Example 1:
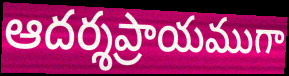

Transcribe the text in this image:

ఆదర్శప్రాయముగా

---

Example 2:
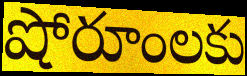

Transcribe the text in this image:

షోరూంలకు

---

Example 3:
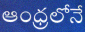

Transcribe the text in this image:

ఆంధ్రలోనే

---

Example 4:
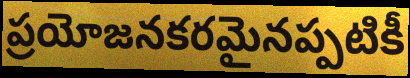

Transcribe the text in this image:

ప్రయోజనకరమైనప్పటికీ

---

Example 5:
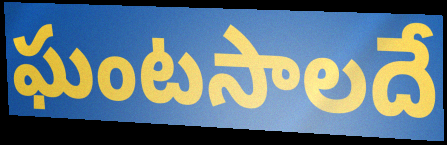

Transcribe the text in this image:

ఘంటసాలదే